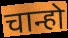
चान्हो